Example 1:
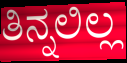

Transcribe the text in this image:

ತಿನ್ನಲಿಲ್ಲ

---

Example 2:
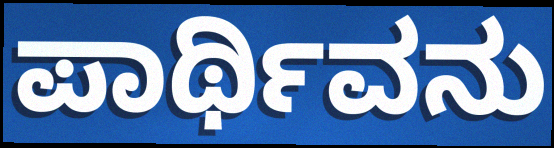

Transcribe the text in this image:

ಪಾರ್ಥಿವನು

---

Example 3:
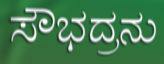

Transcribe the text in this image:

ಸೌಭದ್ರನು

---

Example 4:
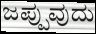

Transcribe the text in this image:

ಜಪ್ಪುವುದು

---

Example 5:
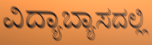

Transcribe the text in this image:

ವಿದ್ಯಾಬ್ಯಾಸದಲ್ಲಿ